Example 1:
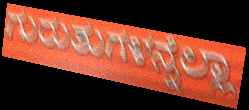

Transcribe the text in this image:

ಗುರುತುಗಳನ್ನೆಲ್ಲಾ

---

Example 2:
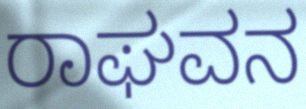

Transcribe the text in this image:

ರಾಘವನ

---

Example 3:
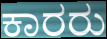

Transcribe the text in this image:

ಕಾರರು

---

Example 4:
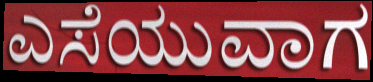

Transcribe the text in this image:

ಎಸೆಯುವಾಗ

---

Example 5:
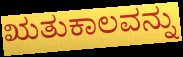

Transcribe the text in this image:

ಋತುಕಾಲವನ್ನು